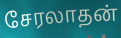
சேரலாதன்